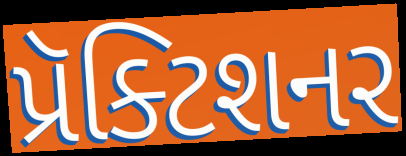
પ્રૅક્ટિશનર